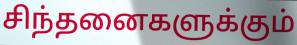
சிந்தனைகளுக்கும்